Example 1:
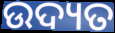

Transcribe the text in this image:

ଉଦ୍ୟତ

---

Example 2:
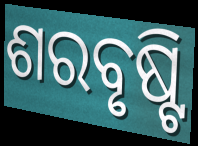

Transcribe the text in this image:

ଶରବୃଷ୍ଟି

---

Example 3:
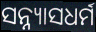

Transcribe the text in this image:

ସନ୍ନ୍ୟାସଧର୍ମ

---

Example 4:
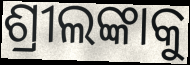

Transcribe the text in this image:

ଶ୍ରୀଲଙ୍କାକୁ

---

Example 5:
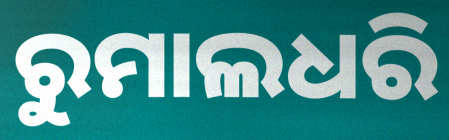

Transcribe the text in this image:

ରୁମାଲଧରି